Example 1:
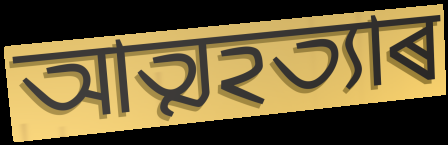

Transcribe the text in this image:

আত্মহত্যাৰ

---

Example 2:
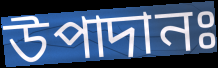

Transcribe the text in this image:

উপাদানঃ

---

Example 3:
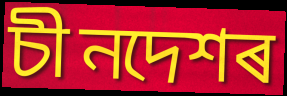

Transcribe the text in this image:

চীনদেশৰ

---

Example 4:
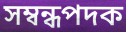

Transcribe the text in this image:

সম্বন্ধপদক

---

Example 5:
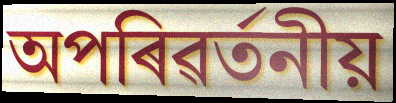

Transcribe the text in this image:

অপৰিৱৰ্তনীয়